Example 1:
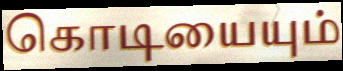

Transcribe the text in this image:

கொடியையும்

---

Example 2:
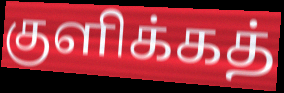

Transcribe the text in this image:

குளிக்கத்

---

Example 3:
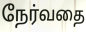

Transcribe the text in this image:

நேர்வதை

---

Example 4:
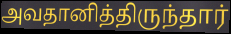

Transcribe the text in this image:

அவதானித்திருந்தார்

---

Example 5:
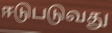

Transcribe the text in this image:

ஈடுபடுவது